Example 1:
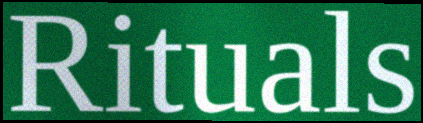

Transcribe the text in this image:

Rituals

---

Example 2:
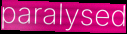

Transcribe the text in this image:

paralysed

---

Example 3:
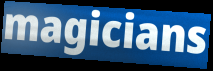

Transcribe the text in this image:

magicians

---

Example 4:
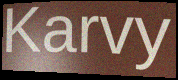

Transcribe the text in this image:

Karvy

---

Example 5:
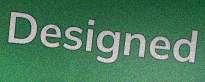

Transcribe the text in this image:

Designed